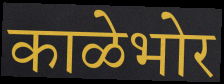
काळेभोर